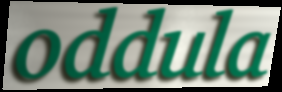
oddula